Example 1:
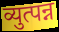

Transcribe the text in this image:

व्युत्पन्न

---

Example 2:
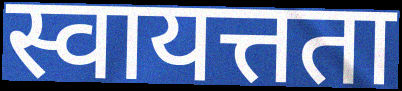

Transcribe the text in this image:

स्वायत्तता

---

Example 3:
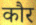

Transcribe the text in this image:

कौर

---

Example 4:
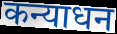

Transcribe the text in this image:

कन्याधन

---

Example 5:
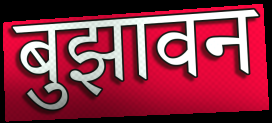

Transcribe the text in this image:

बुझावन